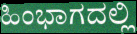
ಹಿಂಭಾಗದಲ್ಲಿ